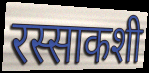
रस्साकशी